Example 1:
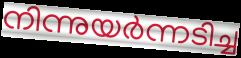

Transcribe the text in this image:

നിന്നുയർന്നടിച്ച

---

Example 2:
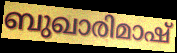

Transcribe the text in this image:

ബുഖാരിമാഷ്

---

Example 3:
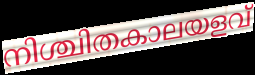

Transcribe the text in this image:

നിശ്ചിതകാലയളവ്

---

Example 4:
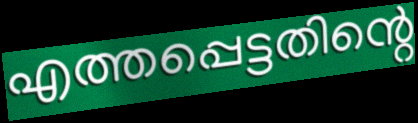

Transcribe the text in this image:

എത്തപ്പെട്ടതിന്റെ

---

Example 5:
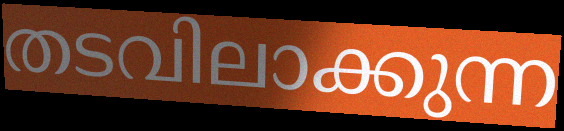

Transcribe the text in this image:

തടവിലാക്കുന്ന